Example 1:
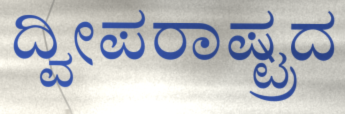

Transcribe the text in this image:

ದ್ವೀಪರಾಷ್ಟ್ರದ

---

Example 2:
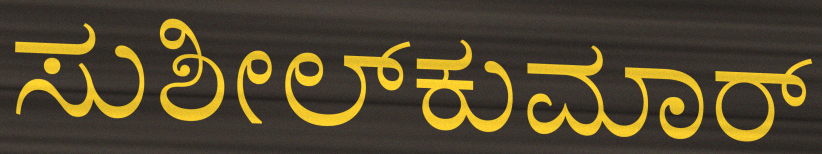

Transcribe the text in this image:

ಸುಶೀಲ್‌ಕುಮಾರ್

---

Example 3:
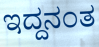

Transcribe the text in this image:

ಇದ್ದನಂತ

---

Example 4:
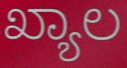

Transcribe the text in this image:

ಖ್ಯಾಲ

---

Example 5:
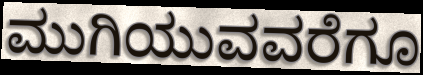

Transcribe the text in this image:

ಮುಗಿಯುವವರೆಗೂ